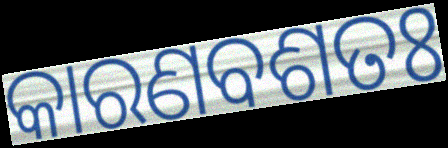
କାରଣବଶତଃ